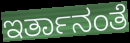
ಇರ್ತಾನಂತೆ